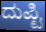
ದುಪ್ಟಿ